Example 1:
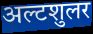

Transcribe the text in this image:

अल्टशुलर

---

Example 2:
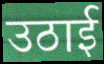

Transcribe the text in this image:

उठाई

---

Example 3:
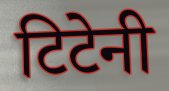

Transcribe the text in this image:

टिटेनी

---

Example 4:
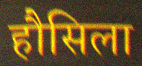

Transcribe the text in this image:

हौसिला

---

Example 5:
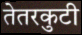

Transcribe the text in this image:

तेतरकुटी